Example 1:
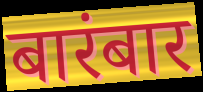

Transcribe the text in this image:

बारंबार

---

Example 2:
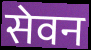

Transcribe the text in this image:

सेवन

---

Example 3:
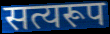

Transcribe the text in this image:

सत्यरूप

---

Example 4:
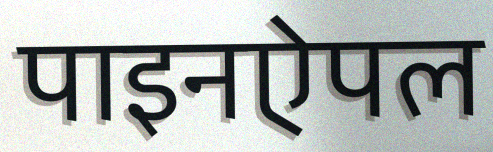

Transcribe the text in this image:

पाइनऐपल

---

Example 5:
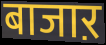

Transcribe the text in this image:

बाजाऱ